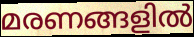
മരണങ്ങളിൽ